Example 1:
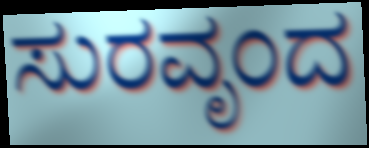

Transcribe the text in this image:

ಸುರವೃಂದ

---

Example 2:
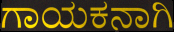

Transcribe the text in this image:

ಗಾಯಕನಾಗಿ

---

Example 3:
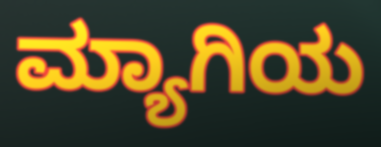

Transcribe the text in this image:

ಮ್ಯಾಗಿಯ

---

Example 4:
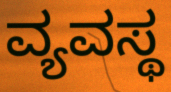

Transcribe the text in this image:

ವ್ಯವಸ್ಥ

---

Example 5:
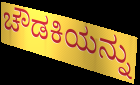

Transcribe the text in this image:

ಚೌಡಕಿಯನ್ನು